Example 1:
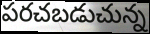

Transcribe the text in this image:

పరచబడుచున్న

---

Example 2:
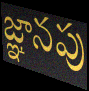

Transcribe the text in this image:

జ్ఞానపు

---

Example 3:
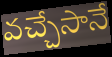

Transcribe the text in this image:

వచ్చేసానే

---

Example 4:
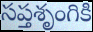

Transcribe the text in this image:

సప్తశృంగికి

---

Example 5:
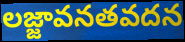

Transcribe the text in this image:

లజ్జావనతవదన